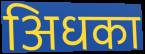
अिधका